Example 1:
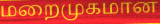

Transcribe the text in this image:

மறைமுகமான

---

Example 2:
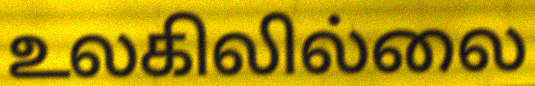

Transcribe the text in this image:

உலகிலில்லை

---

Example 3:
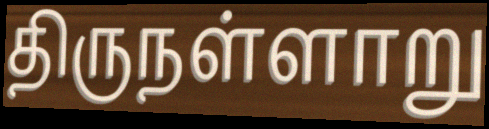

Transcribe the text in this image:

திருநள்ளாறு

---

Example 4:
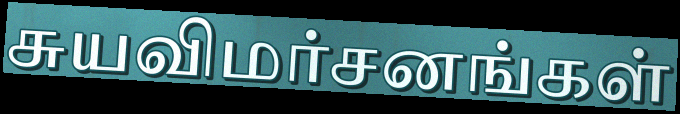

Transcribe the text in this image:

சுயவிமர்சனங்கள்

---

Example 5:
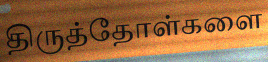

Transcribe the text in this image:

திருத்தோள்களை